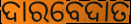
ଦାରବେଦାତ